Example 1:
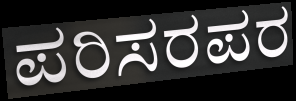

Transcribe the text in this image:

ಪರಿಸರಪರ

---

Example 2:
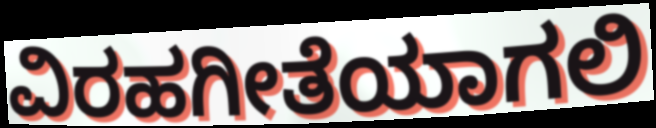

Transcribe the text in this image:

ವಿರಹಗೀತೆಯಾಗಲಿ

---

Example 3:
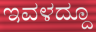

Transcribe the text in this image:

ಇವಳದ್ದೂ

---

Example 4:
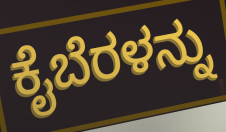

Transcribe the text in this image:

ಕೈಬೆರಳನ್ನು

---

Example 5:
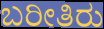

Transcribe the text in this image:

ಬರೀತಿರು